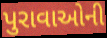
પુરાવાઓની